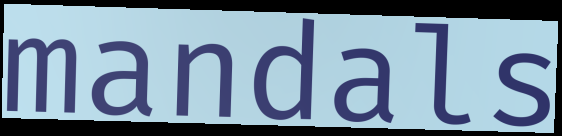
mandals